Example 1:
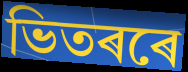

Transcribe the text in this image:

ভিতৰৰে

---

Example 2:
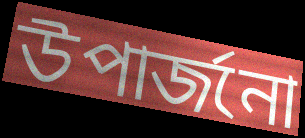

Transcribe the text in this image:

উপাৰ্জনো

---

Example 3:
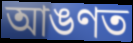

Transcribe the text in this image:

আঙণত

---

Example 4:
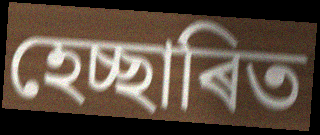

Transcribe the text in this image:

হেচ্ছাৰিত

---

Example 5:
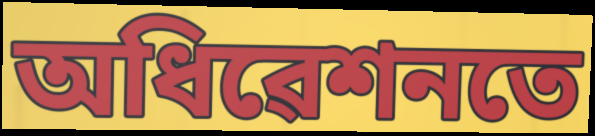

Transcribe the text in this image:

অধিৱেশনতে